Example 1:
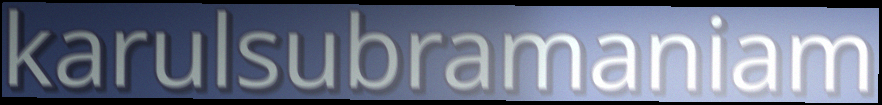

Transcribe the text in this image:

karulsubramaniam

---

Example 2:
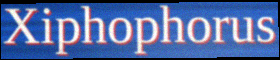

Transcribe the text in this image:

Xiphophorus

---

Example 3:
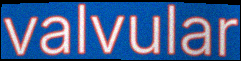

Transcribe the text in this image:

valvular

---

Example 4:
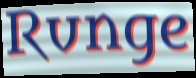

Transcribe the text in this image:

Runge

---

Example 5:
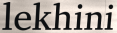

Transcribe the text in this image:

lekhini